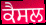
ਕੈਸਲ